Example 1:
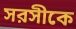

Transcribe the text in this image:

সরসীকে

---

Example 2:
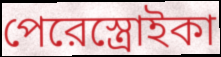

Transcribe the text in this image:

পেরেস্ত্রোইকা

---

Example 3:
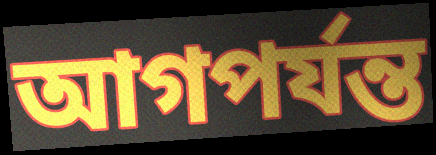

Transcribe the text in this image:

আগপর্যন্ত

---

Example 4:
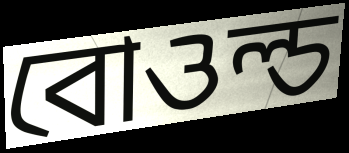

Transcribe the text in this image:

বোওল্ড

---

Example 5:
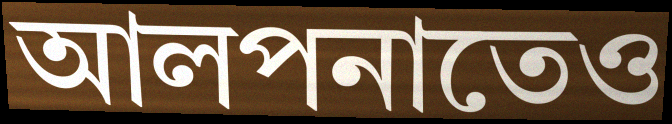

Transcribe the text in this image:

আলপনাতেও